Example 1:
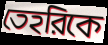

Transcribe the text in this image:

তেহরিকে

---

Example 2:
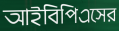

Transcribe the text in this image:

আইবিপিএসের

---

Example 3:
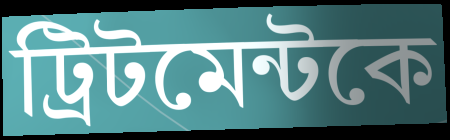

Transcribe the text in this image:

ট্রিটমেন্টকে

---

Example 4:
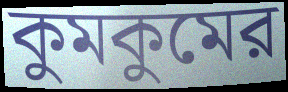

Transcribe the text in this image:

কুমকুমের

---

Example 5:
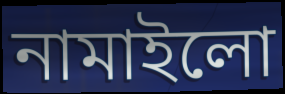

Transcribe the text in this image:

নামাইলো